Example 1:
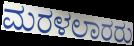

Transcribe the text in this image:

ಮರಳಲಾರರು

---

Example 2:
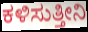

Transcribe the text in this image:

ಕಳಿಸುತ್ತೀನಿ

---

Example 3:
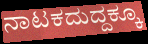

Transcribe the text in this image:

ನಾಟಕದುದ್ದಕ್ಕೂ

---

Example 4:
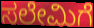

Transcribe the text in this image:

ಸಲೇಮಿಗೆ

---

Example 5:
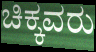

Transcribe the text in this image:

ಚಿಕ್ಕವರು